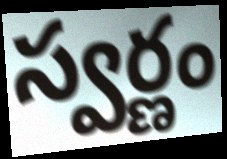
స్వర్ణం